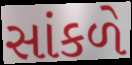
સાંકળે